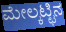
ಮೇಲ್ಕಟ್ಟಿನ